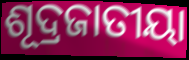
ଶୂଦ୍ରଜାତୀୟା